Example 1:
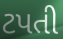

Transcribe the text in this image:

ટપતી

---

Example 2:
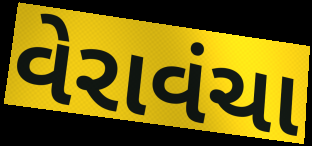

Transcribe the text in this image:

વેરાવંચા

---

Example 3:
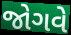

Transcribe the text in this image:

જોગવે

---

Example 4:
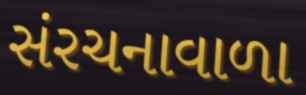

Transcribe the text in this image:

સંરચનાવાળા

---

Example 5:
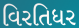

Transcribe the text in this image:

વિરતિધર